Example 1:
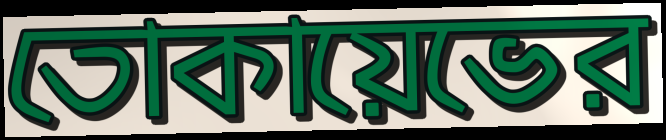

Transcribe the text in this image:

তোকায়েভের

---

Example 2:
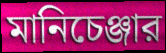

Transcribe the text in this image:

মানিচেঞ্জার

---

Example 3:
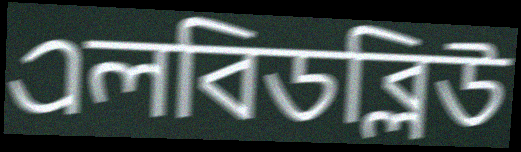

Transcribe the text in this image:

এলবিডব্লিউ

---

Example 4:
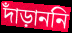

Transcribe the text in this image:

দাঁড়াননি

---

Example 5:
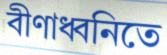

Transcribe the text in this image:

বীণাধ্বনিতে